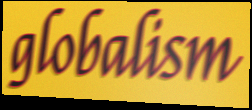
globalism